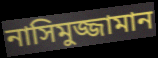
নাসিমুজ্জামান